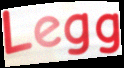
Legg